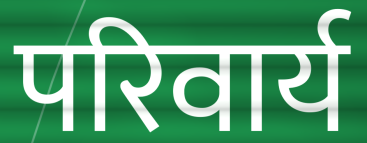
परिवार्य